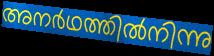
അനർഥത്തിൽനിന്നു